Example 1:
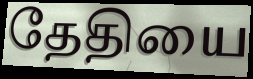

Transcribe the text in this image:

தேதியை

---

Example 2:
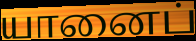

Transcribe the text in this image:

யானைப்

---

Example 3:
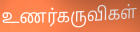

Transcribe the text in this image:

உணர்கருவிகள்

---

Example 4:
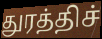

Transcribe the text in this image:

துரத்திச்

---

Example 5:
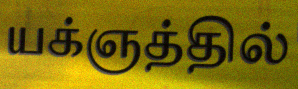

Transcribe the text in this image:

யக்ஞத்தில்